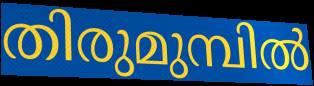
തിരുമുമ്പിൽ